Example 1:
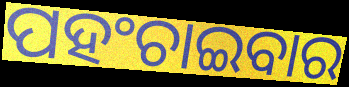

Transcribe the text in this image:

ପହଂଚାଇବାର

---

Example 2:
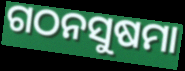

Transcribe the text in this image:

ଗଠନସୁଷମା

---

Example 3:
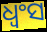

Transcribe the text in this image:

ଧ୍ଵଂସ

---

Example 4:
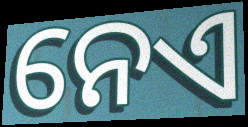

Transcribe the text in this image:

ନେଏ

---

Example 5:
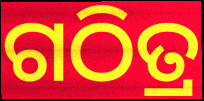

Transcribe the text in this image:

ଗଠିତ୍ର